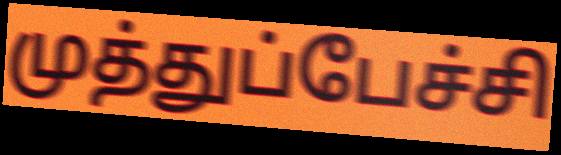
முத்துப்பேச்சி